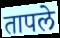
तापले